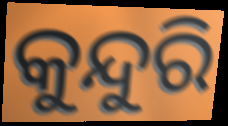
କୁନ୍ଦୁରି